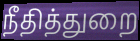
நீதித்துறை